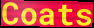
Coats